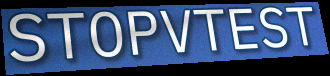
STOPVTEST